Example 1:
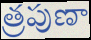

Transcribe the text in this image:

త్రపుణా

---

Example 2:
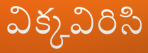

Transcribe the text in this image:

విక్కవిరిసి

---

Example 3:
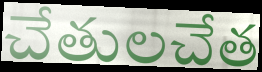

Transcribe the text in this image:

చేతులచేత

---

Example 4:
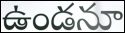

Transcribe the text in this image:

ఉండనూ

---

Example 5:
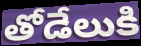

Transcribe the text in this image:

తోడేలుకి